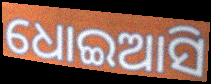
ଧୋଇଆସି